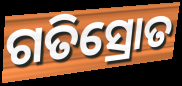
ଗତିସ୍ରୋତ